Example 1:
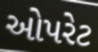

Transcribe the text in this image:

ઓપરેટ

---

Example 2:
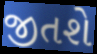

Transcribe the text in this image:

જીતશે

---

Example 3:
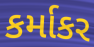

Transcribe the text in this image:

કર્માકર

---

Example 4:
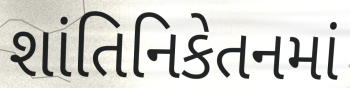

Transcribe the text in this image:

શાંતિનિકેતનમાં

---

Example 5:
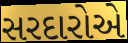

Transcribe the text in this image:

સરદારોએ